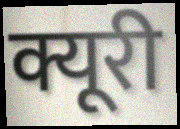
क्यूरी